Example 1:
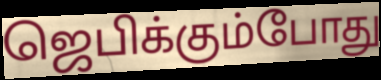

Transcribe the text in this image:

ஜெபிக்கும்போது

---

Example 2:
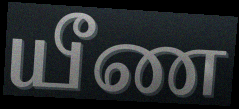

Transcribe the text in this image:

யீண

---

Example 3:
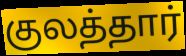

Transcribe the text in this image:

குலத்தார்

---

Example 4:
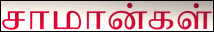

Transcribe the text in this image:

சாமான்கள்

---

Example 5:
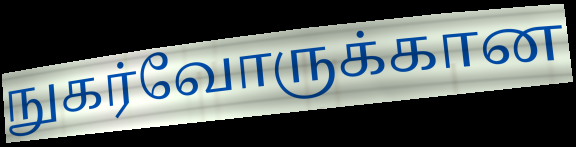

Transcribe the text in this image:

நுகர்வோருக்கான